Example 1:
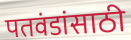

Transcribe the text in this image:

पतवंडांसाठी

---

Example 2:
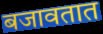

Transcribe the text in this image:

बजावतात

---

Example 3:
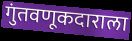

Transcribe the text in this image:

गुंतवणूकदाराला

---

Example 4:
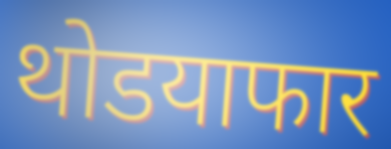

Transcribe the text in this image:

थोडयाफार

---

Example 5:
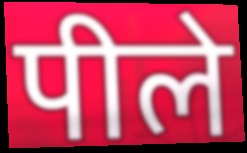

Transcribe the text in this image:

पीले